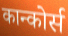
कान्कोर्स